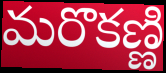
మరొకణ్ణి